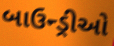
બાઉન્ડ્રીઓ